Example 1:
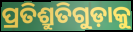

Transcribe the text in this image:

ପ୍ରତିଶ୍ରୁତିଗୁଡ଼ାକୁ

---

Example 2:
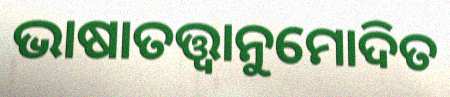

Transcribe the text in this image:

ଭାଷାତତ୍ତ୍ୱାନୁମୋଦିତ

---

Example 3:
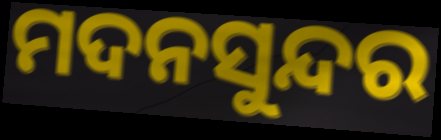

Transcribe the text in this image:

ମଦନସୁନ୍ଦର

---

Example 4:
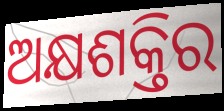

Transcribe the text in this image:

ଅକ୍ଷଶକ୍ତିର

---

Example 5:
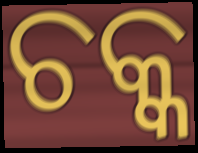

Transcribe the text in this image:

ଚକ୍କ